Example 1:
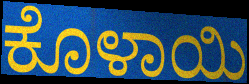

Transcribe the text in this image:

ಕೊಳಾಯಿ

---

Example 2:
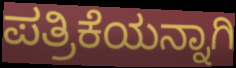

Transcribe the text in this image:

ಪತ್ರಿಕೆಯನ್ನಾಗಿ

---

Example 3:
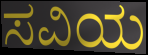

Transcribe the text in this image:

ಸವಿಯ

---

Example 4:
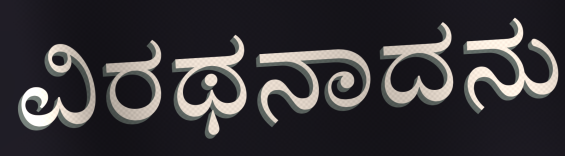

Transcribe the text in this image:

ವಿರಥನಾದನು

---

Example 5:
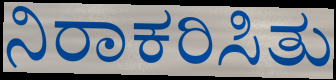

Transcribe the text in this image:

ನಿರಾಕರಿಸಿತು